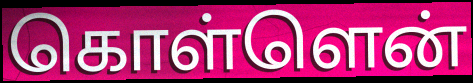
கொள்ளென்